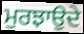
ਮੁਰਝਾਉਦੇ